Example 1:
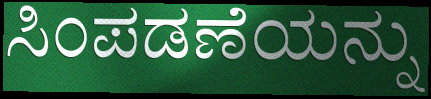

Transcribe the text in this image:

ಸಿಂಪಡಣೆಯನ್ನು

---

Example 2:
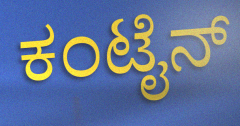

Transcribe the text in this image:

ಕಂಟೈನ್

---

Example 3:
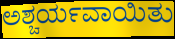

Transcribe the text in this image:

ಅಶ್ಚರ್ಯವಾಯಿತು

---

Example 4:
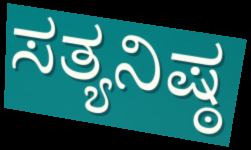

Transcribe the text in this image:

ಸತ್ಯನಿಷ್ಠ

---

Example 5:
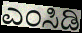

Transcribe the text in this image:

ಎಂಸಿಡಿ